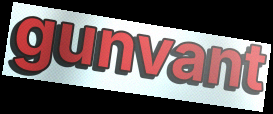
gunvant